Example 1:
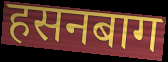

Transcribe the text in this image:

हसनबाग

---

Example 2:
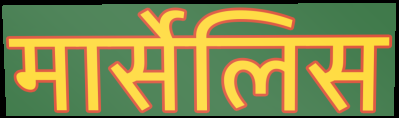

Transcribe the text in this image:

मार्सेलिस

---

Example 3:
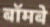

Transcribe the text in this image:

बॉमबे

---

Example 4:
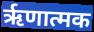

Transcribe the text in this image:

ऋृणात्मक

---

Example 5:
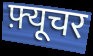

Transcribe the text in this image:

फ़्यूचर